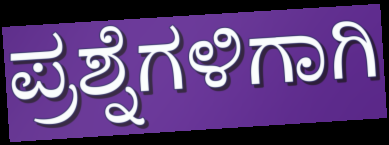
ಪ್ರಶ್ನೆಗಳಿಗಾಗಿ